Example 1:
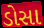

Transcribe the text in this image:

ડોસા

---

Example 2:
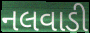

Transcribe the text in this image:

નલવાડી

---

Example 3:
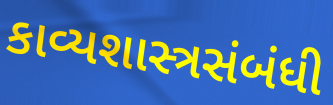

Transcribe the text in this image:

કાવ્યશાસ્ત્રસંબંધી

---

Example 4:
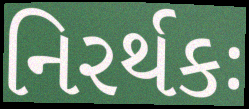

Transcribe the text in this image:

નિરર્થકઃ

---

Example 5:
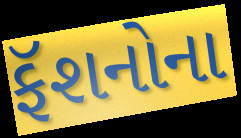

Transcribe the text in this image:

ફૅશનોના